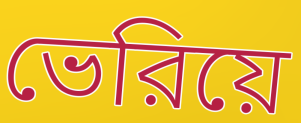
ভেরিয়ে